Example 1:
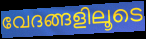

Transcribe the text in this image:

വേദങ്ങളിലൂടെ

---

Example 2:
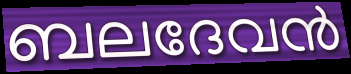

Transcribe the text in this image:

ബലദേവൻ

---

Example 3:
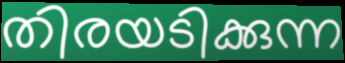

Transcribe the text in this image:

തിരയടിക്കുന്ന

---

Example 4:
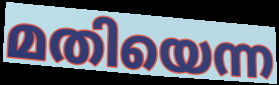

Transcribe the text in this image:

മതിയെന്ന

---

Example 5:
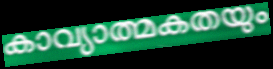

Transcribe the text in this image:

കാവ്യാത്മകതയും